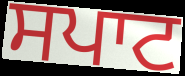
ਸਪਾਟ